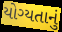
યોગ્યતાનું